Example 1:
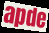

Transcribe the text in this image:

apde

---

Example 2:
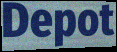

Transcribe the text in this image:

Depot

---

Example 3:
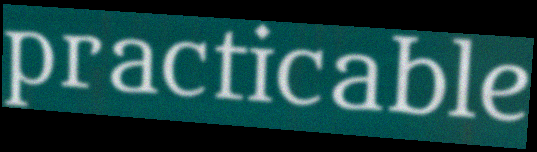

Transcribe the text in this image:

practicable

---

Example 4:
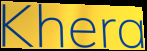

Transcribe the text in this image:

Khera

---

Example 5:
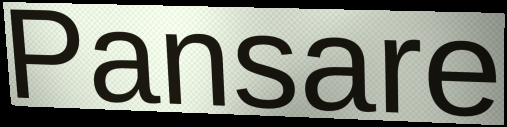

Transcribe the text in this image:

Pansare